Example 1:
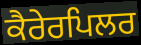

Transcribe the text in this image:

ਕੈਰੇਰਪਿਲਰ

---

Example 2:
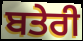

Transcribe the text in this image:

ਬਤੇਰੀ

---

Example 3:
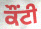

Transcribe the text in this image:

ਕੌਂਟੀ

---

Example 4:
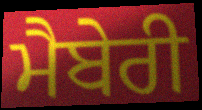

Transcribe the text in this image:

ਮੈਬੇਰੀ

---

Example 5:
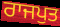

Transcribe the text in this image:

ਰਾਜਪੁਤ